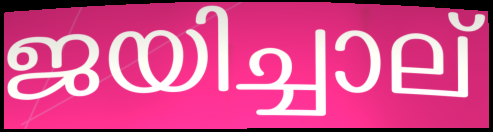
ജയിച്ചാല്